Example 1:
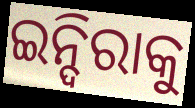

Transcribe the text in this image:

ଇନ୍ଦିରାକୁ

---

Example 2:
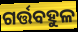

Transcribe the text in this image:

ଗର୍ତ୍ତବହୁଳ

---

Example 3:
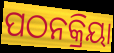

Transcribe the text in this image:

ପଠନକ୍ରିୟା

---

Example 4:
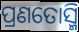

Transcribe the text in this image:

ପ୍ରଣତୋସ୍ମି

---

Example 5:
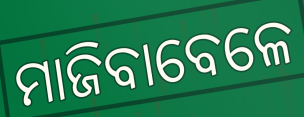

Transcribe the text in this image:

ମାଜିବାବେଳେ